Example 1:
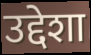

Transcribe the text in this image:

उद्देशा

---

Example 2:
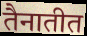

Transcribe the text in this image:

तैनातीत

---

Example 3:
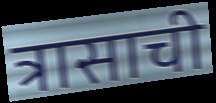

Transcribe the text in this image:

त्रासाची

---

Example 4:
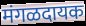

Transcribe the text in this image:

मंगळदायक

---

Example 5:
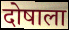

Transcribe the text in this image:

दोषाला